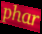
phar